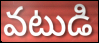
వటుడి